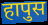
हापुस